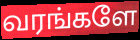
வரங்களே